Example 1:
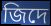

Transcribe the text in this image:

জিদে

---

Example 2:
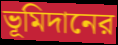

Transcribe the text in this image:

ভূমিদানের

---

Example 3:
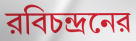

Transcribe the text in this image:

রবিচন্দ্রনের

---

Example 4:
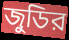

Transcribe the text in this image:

জুডির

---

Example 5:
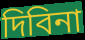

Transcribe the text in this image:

দিবিনা